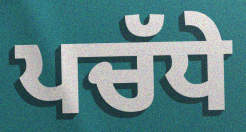
ਪਚੱਧੇ